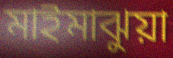
মাইমাঝুয়া